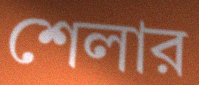
শেলার